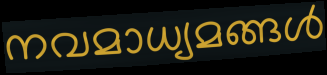
നവമാധ്യമങ്ങൾ